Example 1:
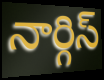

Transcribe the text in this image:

నార్గిస్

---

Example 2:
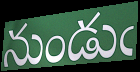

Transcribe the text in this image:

నుండుఁ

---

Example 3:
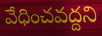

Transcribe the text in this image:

వేధించవద్దని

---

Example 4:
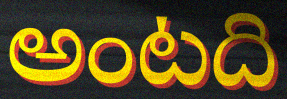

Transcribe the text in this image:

అంటది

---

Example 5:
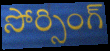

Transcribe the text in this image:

సోర్సింగ్